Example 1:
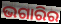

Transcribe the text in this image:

ଭଗାରିର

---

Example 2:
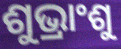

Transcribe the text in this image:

ଶୁଭ୍ରାଂଶୁ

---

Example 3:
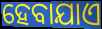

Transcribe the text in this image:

ହେବାଯାଏ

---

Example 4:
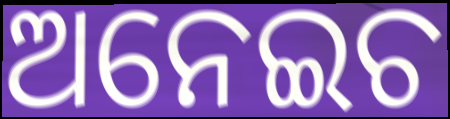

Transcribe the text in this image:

ଅନେଇଚ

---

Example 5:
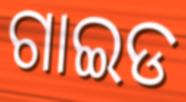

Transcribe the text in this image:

ଗାଇଡ